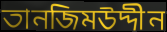
তানজিমউদ্দীন